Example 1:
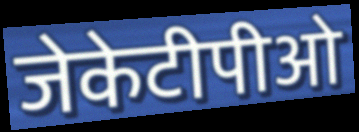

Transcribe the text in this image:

जेकेटीपीओ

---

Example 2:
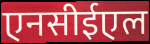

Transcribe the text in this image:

एनसीईएल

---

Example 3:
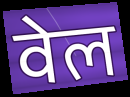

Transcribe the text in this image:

वेल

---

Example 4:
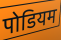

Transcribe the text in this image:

पोडियम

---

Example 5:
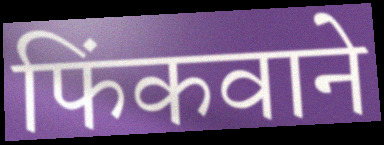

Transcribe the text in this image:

फिंकवाने